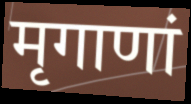
मृगाणां